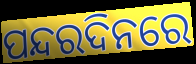
ପନ୍ଦରଦିନରେ